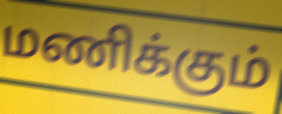
மணிக்கும்